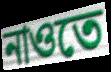
নাওতে